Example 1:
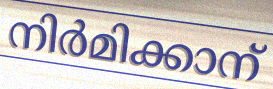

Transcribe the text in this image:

നിർമിക്കാന്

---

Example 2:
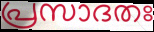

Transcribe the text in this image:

പ്രസാദതഃ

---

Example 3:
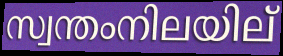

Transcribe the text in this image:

സ്വന്തംനിലയില്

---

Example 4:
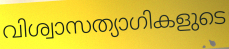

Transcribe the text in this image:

വിശ്വാസത്യാഗികളുടെ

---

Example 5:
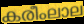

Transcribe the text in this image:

കരീംലാല